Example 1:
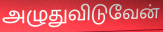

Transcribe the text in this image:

அழுதுவிடுவேன்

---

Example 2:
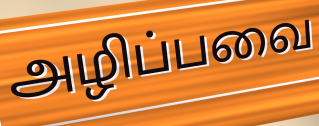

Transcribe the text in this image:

அழிப்பவை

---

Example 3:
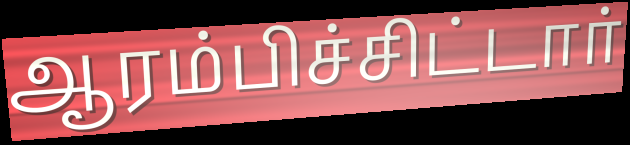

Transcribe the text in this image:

ஆரம்பிச்சிட்டார்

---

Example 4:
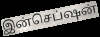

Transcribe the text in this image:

இன்செப்ஷன்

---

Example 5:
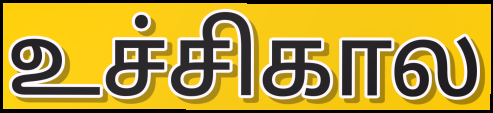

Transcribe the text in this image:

உச்சிகால